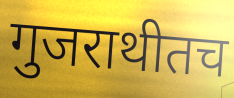
गुजराथीतच